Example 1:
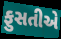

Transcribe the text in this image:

ફુસતીએ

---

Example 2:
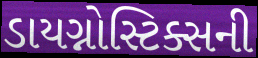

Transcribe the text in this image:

ડાયગ્નોસ્ટિક્સની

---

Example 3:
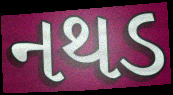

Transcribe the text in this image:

નથડ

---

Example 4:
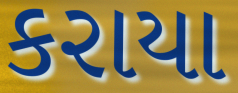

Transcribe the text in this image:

કરાયા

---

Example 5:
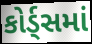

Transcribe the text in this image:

કોર્ડ્સમાં